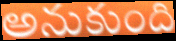
అనుకుంది